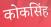
कोकसिंह